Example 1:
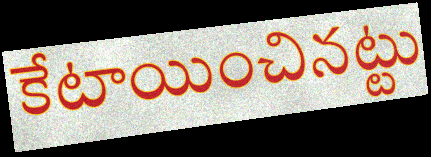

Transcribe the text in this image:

కేటాయించినట్టు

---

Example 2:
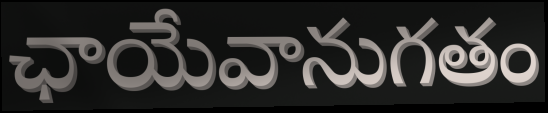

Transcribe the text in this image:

ఛాయేవానుగతం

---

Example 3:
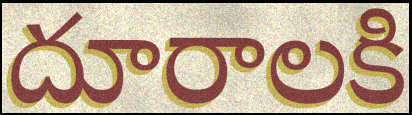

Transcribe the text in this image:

దూరాలకి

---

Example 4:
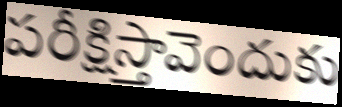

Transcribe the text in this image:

పరీక్షిస్తావెందుకు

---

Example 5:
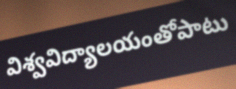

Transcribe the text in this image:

విశ్వవిద్యాలయంతోపాటు